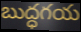
బుద్ధగయ